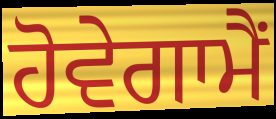
ਹੋਵੇਗਾਮੈਂ